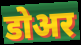
डोअर